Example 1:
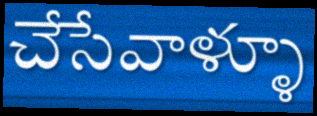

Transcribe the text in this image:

చేసేవాళ్ళూ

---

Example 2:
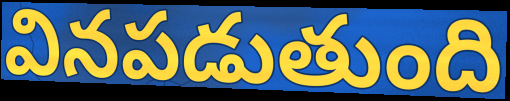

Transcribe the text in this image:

వినపడుతుంది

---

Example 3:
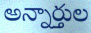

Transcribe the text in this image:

అన్నార్తుల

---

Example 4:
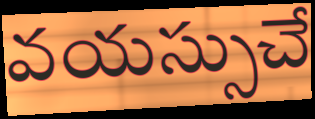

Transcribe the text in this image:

వయస్సుచే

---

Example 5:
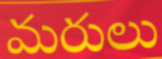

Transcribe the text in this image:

మరులు